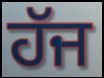
ਹੱਜ